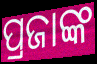
ପ୍ରଜାଙ୍କ